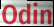
Odin